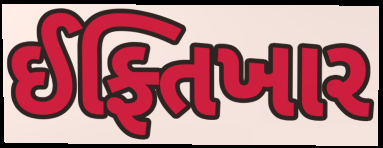
ઈફ્તિખાર